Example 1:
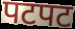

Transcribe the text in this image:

पटपट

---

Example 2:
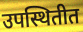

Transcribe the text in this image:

उपस्थितीत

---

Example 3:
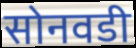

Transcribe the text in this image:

सोनवडी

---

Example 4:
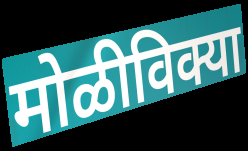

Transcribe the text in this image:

मोळीविक्या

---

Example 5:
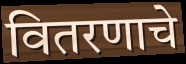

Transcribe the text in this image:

वितरणाचे